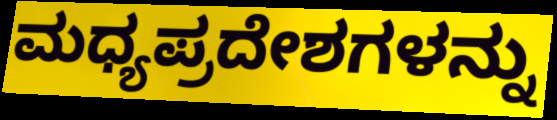
ಮಧ್ಯಪ್ರದೇಶಗಳನ್ನು